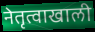
नेतृत्वाखाली